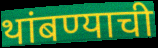
थांबण्याची